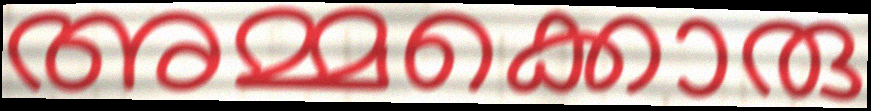
അമ്മക്കൊരു